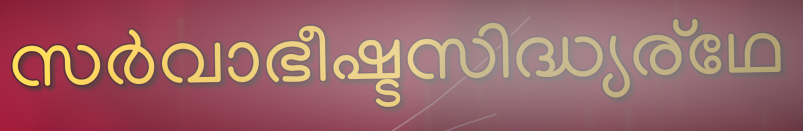
സർവാഭീഷ്ടസിദ്ധ്യര്ഥേ